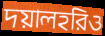
দয়ালহরিও